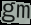
gm